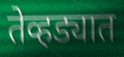
तेव्हड्यात